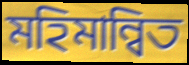
মহিমান্বিত